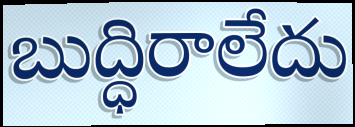
బుద్ధిరాలేదు